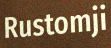
Rustomji